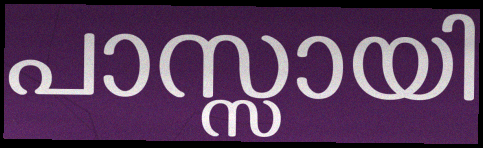
പാസ്സായി